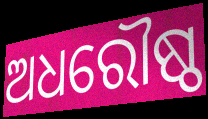
ଅଧରୌଷ୍ଠ